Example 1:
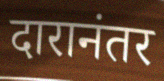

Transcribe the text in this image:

दारानंतर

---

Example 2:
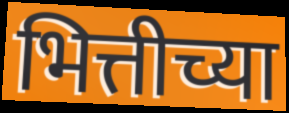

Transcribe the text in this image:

भित्तीच्या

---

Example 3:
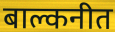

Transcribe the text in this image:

बाल्कनीत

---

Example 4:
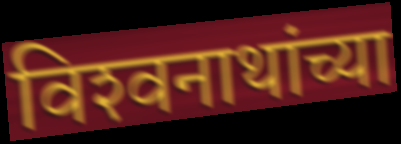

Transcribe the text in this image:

विश्वनाथांच्या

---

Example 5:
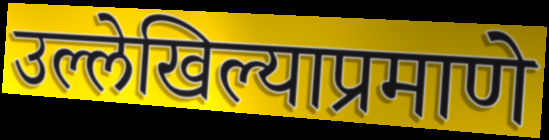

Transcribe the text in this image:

उल्लेखिल्याप्रमाणे